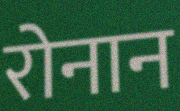
रोनान